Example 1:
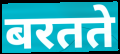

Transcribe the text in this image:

बरतते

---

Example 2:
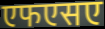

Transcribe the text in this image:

एफएसए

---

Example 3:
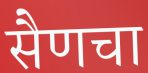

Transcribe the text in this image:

सैणचा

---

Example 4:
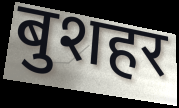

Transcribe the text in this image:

बुशहर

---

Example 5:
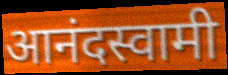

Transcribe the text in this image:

आनंदस्वामी